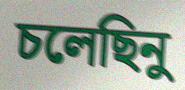
চলেছিনু